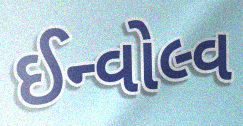
ઈન્વોલ્વ